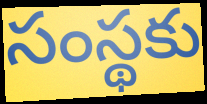
సంస్థకు